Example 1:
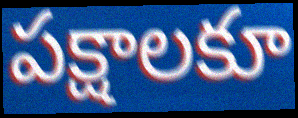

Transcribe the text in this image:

పక్షాలకూ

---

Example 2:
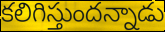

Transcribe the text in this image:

కలిగిస్తుందన్నాడు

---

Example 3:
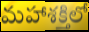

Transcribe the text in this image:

మహాశక్తిలో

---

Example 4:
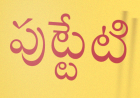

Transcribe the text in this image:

పుట్టేటి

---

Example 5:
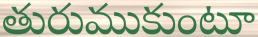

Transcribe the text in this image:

తురుముకుంటూ